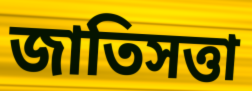
জাতিসত্তা